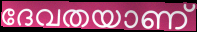
ദേവതയാണ്